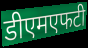
डीएमएफटी